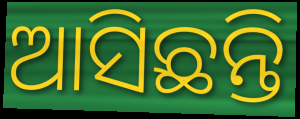
ଆସିଛନ୍ତି